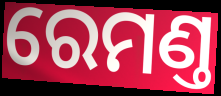
ରେମଣ୍ତ